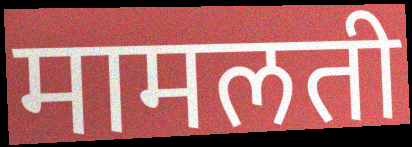
मामलती